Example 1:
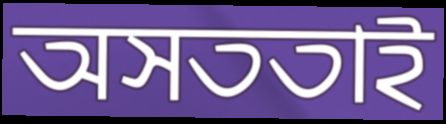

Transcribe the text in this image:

অসততাই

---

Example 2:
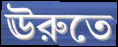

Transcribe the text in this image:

ঊরুতে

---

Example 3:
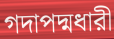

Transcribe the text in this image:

গদাপদ্মধারী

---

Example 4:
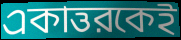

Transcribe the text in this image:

একাত্তরকেই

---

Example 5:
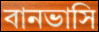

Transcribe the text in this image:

বানভাসি